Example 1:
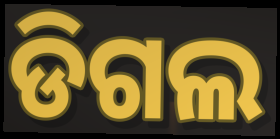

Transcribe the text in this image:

ଡିଗଲ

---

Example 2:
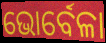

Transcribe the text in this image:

ଭୋର୍ବେଳା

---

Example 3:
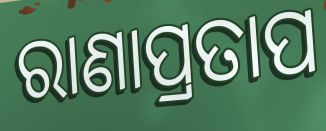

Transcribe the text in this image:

ରାଣାପ୍ରତାପ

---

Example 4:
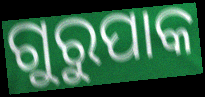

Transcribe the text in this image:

ଗୁରୁପାକ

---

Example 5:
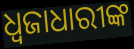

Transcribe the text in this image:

ଧ୍ୱଜାଧାରୀଙ୍କ